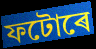
ফটোৰে